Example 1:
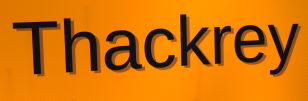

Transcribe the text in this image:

Thackrey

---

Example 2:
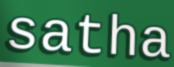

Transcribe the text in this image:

satha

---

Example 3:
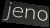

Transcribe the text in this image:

jeno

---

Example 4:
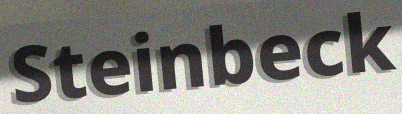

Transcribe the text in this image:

Steinbeck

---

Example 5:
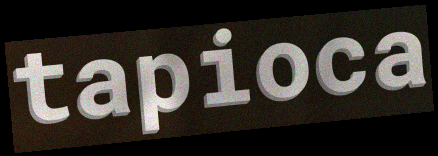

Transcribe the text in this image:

tapioca